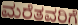
ಮರೆತವರಿಗೆ